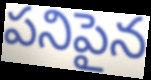
పనిపైన